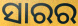
ସାରର